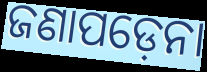
ଜଣାପଡ଼େନା